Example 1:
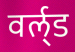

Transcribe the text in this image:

वर्ल्ड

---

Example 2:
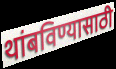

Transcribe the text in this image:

थांबविण्यासाठी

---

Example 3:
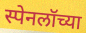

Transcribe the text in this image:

स्पेनलॉच्या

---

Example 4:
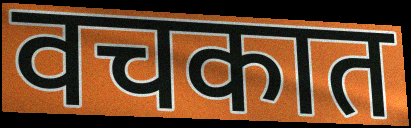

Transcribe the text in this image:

वचकात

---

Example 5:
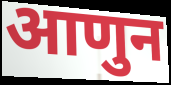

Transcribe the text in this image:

आणुन